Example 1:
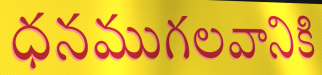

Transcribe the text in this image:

ధనముగలవానికి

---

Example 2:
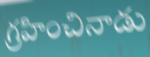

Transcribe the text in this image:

గ్రహించినాడు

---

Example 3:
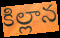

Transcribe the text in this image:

కిల్లాన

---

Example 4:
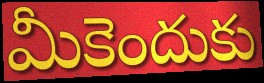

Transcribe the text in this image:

మీకెందుకు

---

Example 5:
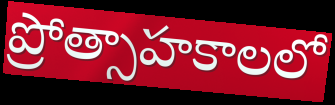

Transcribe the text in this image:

ప్రోత్సాహకాలలో